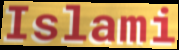
Islami